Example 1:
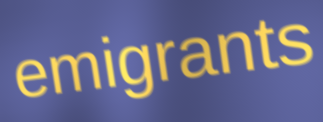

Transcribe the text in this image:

emigrants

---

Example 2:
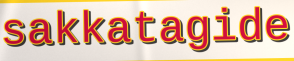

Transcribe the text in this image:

sakkatagide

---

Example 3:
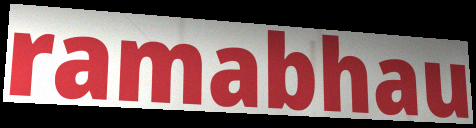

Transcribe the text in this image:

ramabhau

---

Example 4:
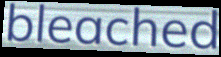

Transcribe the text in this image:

bleached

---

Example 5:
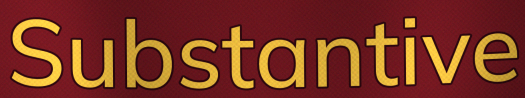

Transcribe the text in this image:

Substantive